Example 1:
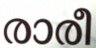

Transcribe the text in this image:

രാരീ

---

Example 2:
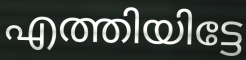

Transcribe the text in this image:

എത്തിയിട്ടേ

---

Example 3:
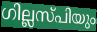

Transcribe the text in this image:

ഗില്ലസ്പിയും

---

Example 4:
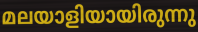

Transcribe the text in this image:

മലയാളിയായിരുന്നു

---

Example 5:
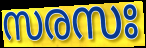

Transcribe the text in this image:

സരസഃ